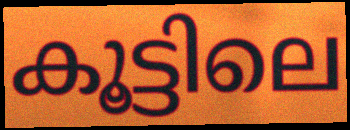
കൂട്ടിലെ